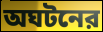
অঘটনের